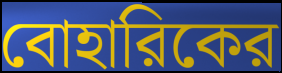
বোহারিকের